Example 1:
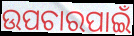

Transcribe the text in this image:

ଉପଚାରପାଇଁ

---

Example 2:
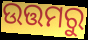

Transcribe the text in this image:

ଉତ୍ତମରୁ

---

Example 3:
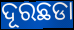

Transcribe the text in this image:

ଦୂରଛଡା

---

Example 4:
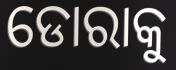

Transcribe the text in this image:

ଡୋରାକୁ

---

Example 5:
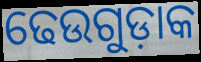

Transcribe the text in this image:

ଢେଉଗୁଡ଼ାକ